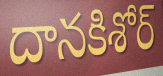
దానకిశోర్